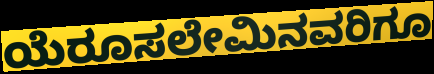
ಯೆರೂಸಲೇಮಿನವರಿಗೂ